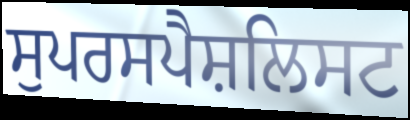
ਸੁਪਰਸਪੈਸ਼ਲਿਸਟ